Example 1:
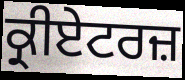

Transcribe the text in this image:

ਕ੍ਰੀਏਟਰਜ਼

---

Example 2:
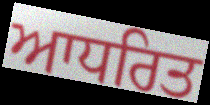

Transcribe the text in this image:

ਆਧਰਿਤ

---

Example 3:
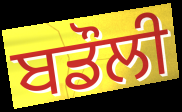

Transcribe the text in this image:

ਬਡੌਲੀ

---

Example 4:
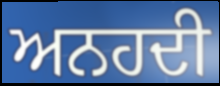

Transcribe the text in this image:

ਅਨਹਦੀ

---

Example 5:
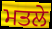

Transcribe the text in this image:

ਮਤਲੇ